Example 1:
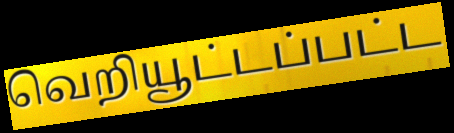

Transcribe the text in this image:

வெறியூட்டப்பட்ட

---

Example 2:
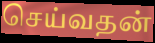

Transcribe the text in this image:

செய்வதன்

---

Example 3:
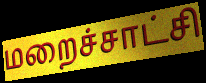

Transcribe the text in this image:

மறைச்சாட்சி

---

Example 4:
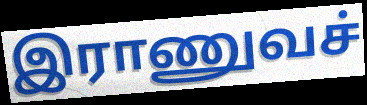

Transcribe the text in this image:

இராணுவச்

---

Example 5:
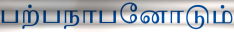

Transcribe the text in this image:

பற்பநாபனோடும்